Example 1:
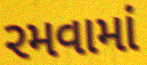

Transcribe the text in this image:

રમવામાં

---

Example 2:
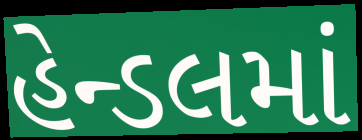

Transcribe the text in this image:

હેન્ડલમાં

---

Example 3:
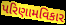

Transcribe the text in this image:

પરિણામવિકાર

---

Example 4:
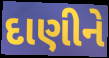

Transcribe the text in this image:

દાણીને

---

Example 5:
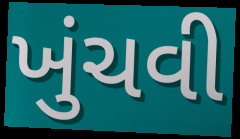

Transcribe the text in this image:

ખુંચવી